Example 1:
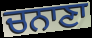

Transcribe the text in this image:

ਚਨਾਣਾ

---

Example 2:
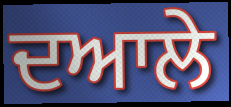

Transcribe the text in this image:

ਦਆਲੇ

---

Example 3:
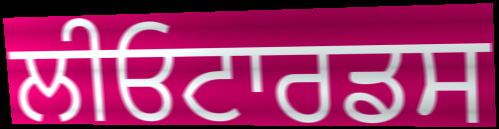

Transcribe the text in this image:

ਲੀਓਟਾਰਡਸ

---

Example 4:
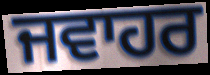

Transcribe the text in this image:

ਜਵਾਹਰ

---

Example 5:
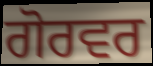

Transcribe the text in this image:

ਗੋਰਵਰ